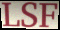
LSF